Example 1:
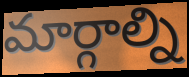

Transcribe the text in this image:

మార్గాల్ని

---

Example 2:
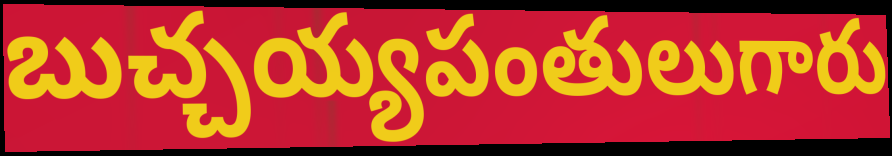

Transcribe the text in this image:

బుచ్చయ్యపంతులుగారు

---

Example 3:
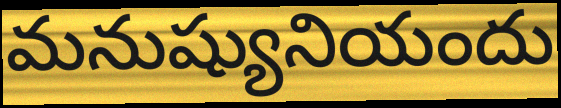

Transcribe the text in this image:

మనుష్యునియందు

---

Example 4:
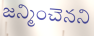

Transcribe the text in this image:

జన్మించెనని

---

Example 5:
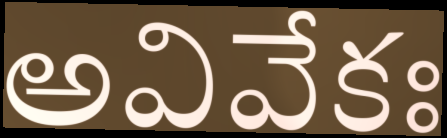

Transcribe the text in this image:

అవివేకః